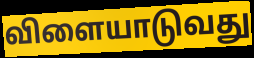
விளையாடுவது